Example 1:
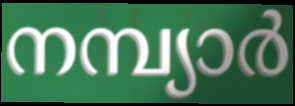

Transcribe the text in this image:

നമ്പ്യാർ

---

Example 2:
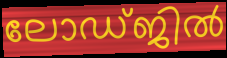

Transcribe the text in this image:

ലോഡ്ജിൽ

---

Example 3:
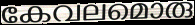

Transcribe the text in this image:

കേവലമൊരു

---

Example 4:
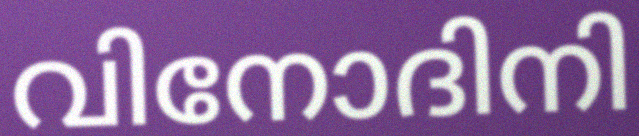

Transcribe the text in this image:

വിനോദിനി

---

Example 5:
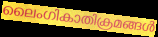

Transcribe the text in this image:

ലൈംഗികാതിക്രമങ്ങൾ